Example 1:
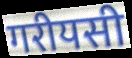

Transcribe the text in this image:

गरीयसी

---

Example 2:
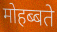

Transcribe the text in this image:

मोहब्बते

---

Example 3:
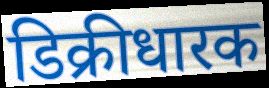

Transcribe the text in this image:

डिक्रीधारक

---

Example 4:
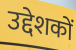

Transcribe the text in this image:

उद्देशकों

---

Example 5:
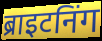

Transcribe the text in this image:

ब्राइटनिंग